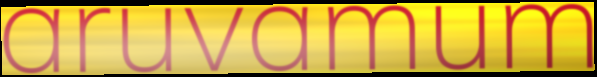
aruvamum